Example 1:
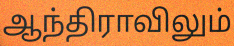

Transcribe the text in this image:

ஆந்திராவிலும்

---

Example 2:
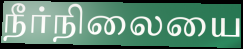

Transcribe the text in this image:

நீர்நிலையை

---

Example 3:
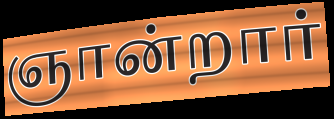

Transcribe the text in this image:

ஞான்றார்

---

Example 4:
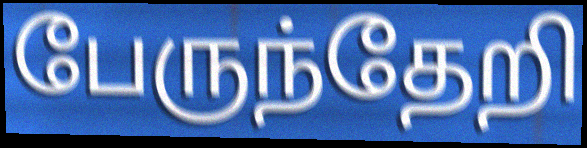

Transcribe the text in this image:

பேருந்தேறி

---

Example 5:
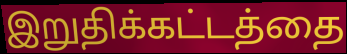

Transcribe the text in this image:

இறுதிக்கட்டத்தை